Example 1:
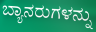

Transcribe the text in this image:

ಬ್ಯಾನರುಗಳನ್ನು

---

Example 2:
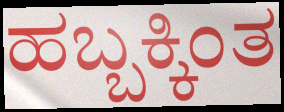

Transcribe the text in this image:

ಹಬ್ಬಕ್ಕಿಂತ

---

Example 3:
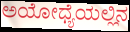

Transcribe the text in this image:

ಅಯೋಧ್ಯೆಯಲ್ಲಿನ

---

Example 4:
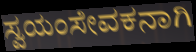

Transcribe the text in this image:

ಸ್ವಯಂಸೇವಕನಾಗಿ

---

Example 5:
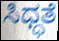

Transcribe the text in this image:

ಸಿಧ್ಧತೆ